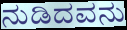
ನುಡಿದವನು